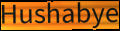
Hushabye